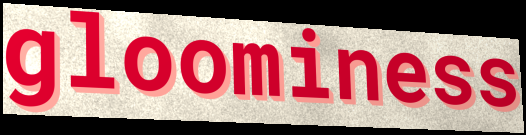
gloominess